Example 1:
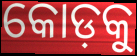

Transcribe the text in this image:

କୋଡ଼କୁ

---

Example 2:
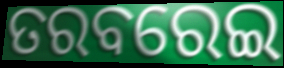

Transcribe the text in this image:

ତରବରେଇ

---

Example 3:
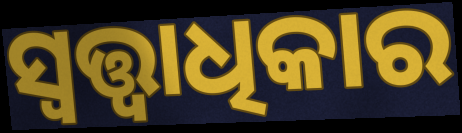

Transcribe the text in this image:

ସ୍ୱତ୍ତ୍ୱାଧିକାର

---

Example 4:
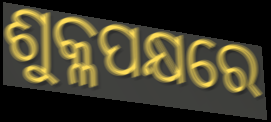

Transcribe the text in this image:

ଶୁକ୍ଳପକ୍ଷରେ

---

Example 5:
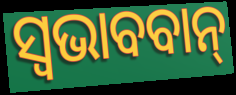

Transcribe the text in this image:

ସ୍ଵଭାବବାନ୍